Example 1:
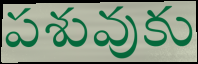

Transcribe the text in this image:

పశువుకు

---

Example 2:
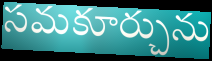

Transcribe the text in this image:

సమకూర్చును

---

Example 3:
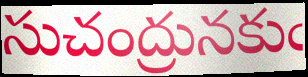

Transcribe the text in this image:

సుచంద్రునకుఁ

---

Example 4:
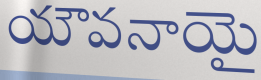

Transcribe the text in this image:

యౌవనాయై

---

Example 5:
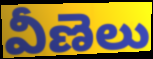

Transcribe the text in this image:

వీణెలు